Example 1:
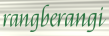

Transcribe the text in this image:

rangberangi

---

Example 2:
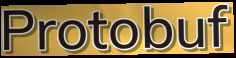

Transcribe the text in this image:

Protobuf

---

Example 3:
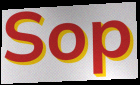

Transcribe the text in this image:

Sop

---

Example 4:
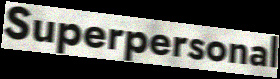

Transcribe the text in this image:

Superpersonal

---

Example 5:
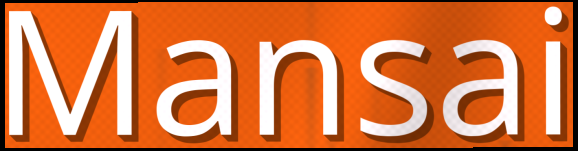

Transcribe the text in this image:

Mansai